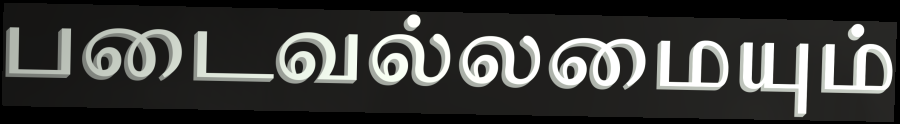
படைவல்லமையும்